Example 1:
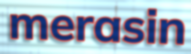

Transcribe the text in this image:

merasin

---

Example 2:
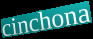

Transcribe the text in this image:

cinchona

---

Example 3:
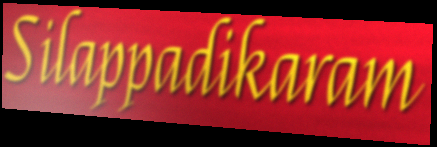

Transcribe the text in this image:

Silappadikaram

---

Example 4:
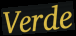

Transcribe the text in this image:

Verde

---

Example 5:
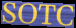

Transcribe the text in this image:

SOTC